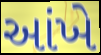
આંખે